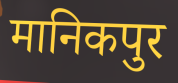
मानिकपुर